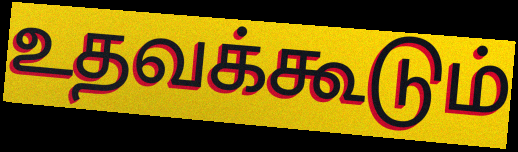
உதவக்கூடும்